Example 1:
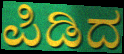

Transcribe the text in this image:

ಪಿಡಿದ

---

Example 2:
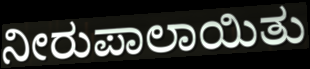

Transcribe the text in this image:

ನೀರುಪಾಲಾಯಿತು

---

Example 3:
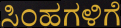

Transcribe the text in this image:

ಸಿಂಹಗಳಿಗೆ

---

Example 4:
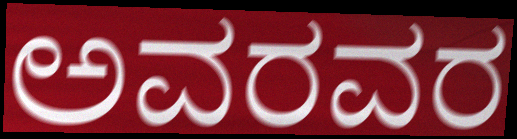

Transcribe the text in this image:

ಅವರವರ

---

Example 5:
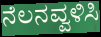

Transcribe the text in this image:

ನೆಲನವ್ವಳಿಸಿ